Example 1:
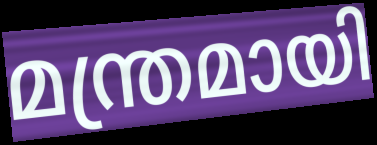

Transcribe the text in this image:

മന്ത്രമായി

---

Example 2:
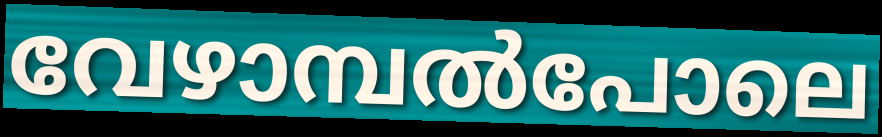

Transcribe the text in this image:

വേഴാമ്പൽപോലെ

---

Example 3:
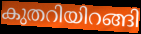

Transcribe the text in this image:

കുതറിയിറങ്ങി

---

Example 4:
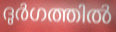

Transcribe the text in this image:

ദുർഗത്തിൽ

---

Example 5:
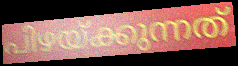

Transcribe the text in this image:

പിഴയ്ക്കുന്നത്